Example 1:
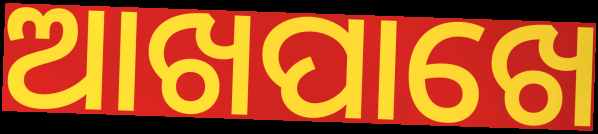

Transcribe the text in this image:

ଆଖପାଖେ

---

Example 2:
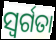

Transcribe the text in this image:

ସ୍ବର୍ଗତା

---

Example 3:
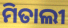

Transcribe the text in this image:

ମିତାଲୀ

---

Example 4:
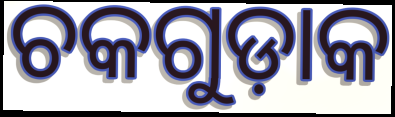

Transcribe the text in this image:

ଚକଗୁଡ଼ାକ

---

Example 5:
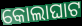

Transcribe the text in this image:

କୋଲାଘାଟ